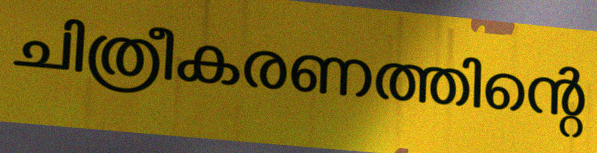
ചിത്രീകരണത്തിന്റെ